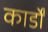
कार्डों